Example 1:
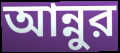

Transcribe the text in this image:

আন্নুর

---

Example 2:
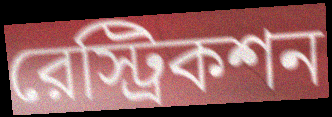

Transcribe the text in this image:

রেস্ট্রিকশন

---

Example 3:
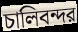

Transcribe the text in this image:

চালিবন্দর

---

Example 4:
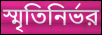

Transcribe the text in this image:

স্মৃতিনির্ভর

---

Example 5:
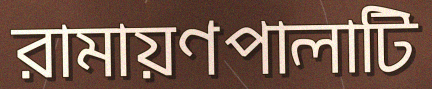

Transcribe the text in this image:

রামায়ণপালাটি